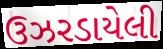
ઉઝરડાયેલી